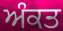
ਅੰਕਤ